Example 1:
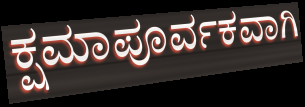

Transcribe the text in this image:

ಕ್ಷಮಾಪೂರ್ವಕವಾಗಿ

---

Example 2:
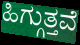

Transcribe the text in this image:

ಹಿಗ್ಗುತ್ತವೆ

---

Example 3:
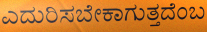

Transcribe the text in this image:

ಎದುರಿಸಬೇಕಾಗುತ್ತದೆಂಬ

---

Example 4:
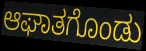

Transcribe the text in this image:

ಆಘಾತಗೊಂಡು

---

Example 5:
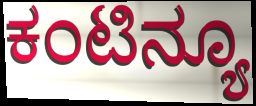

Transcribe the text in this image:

ಕಂಟಿನ್ಯೂ